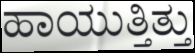
ಹಾಯುತ್ತಿತ್ತು